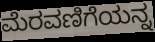
ಮೆರವಣಿಗೆಯನ್ನ